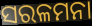
ସରଳମନା